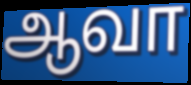
ஆவா